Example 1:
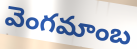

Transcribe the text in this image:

వెంగమాంబ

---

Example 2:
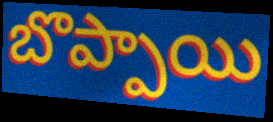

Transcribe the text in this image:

బొప్పాయి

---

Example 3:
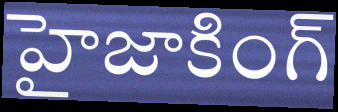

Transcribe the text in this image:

హైజాకింగ్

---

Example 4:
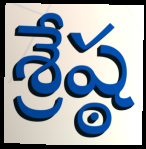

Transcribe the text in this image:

శ్రేష్ఠ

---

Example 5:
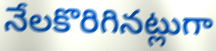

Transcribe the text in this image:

నేలకొరిగినట్లుగా